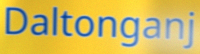
Daltonganj